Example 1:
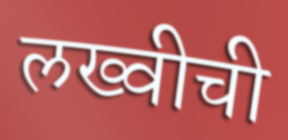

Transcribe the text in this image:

लख्वीची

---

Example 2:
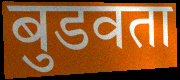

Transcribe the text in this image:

बुडवता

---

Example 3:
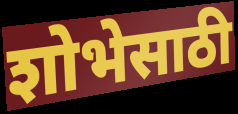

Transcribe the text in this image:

शोभेसाठी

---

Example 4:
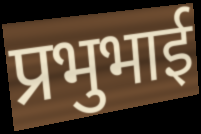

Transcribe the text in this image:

प्रभुभाई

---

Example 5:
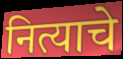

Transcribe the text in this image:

नित्याचे